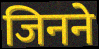
जिनने